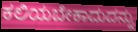
ಕಲಿಯಬೇಕಾದುದನ್ನು